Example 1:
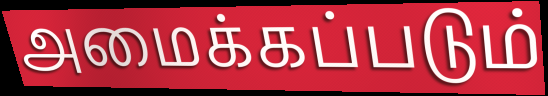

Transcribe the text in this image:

அமைக்கப்படும்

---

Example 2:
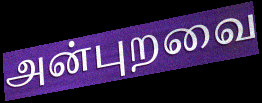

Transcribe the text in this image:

அன்புறவை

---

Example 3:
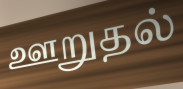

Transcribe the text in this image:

ஊறுதல்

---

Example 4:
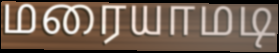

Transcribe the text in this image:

மரையாமடி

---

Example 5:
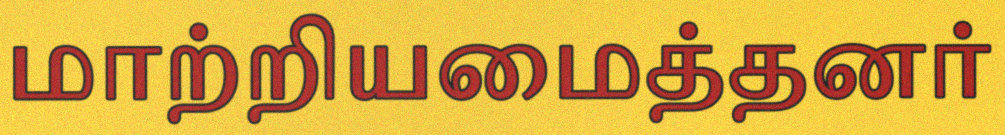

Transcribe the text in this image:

மாற்றியமைத்தனர்